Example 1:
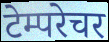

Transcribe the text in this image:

टेम्परेचर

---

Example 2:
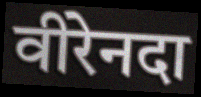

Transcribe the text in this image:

वीरेनदा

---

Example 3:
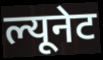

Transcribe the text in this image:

ल्यूनेट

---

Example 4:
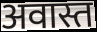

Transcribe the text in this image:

अवास्त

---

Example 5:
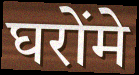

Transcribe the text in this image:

घरोंमे